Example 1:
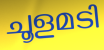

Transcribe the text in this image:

ചൂളമടി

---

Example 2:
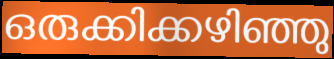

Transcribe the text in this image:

ഒരുക്കിക്കഴിഞ്ഞു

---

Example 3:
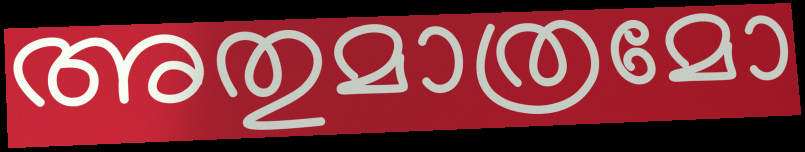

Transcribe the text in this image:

അതുമാത്രമോ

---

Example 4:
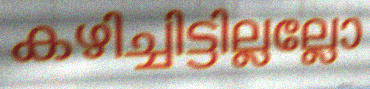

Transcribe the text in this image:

കഴിച്ചിട്ടില്ലല്ലോ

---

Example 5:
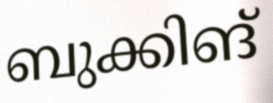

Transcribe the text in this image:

ബുക്കിങ്